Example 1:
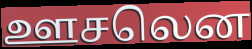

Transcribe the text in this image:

ஊசலென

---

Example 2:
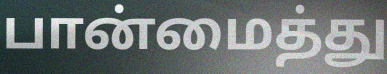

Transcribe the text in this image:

பான்மைத்து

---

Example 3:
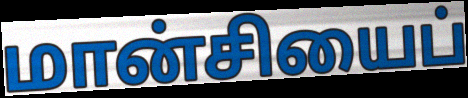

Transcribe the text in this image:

மான்சியைப்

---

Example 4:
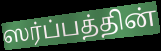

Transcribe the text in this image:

ஸர்ப்பத்தின்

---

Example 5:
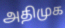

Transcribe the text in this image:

அதிமுக